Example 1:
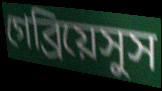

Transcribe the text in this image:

গেব্রিয়েসুস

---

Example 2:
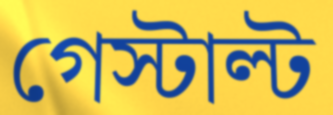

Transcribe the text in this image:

গেস্টাল্ট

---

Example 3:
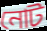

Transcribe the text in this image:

নোট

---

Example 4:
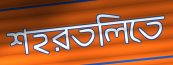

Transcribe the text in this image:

শহরতলিতে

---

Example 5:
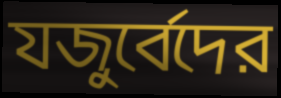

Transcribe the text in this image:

যজুর্বেদের